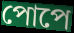
পোপে